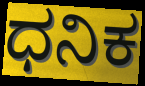
ಧನಿಕ